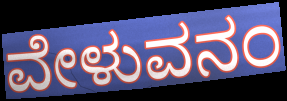
ವೇಳುವನಂ